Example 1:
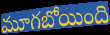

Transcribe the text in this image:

మూగబోయింది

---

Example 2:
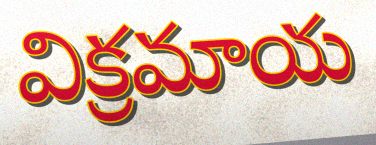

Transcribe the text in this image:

విక్రమాయ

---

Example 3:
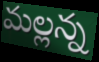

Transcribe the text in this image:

మల్లన్న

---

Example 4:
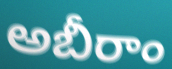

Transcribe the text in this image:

అబీరాం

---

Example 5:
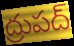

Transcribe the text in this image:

ద్రుపద్